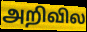
அறிவில